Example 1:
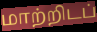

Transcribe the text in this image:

மாற்றிடப்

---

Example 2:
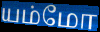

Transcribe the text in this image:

யம்மோ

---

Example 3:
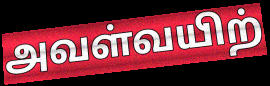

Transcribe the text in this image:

அவள்வயிற்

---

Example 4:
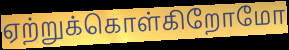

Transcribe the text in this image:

ஏற்றுக்கொள்கிறோமோ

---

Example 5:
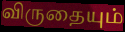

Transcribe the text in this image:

விருதையும்